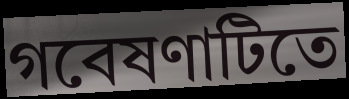
গবেষণাটিতে